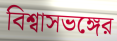
বিশ্বাসভঙ্গের